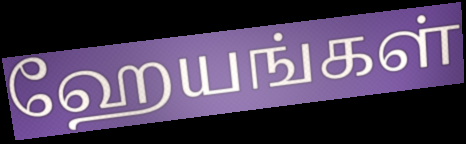
ஹேயங்கள்